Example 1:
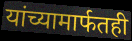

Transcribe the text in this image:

यांच्यामार्फतही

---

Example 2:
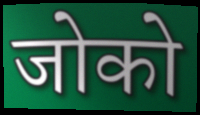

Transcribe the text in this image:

जोको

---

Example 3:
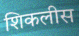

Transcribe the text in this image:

शिकलीस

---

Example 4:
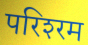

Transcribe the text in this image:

परिश्रम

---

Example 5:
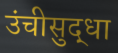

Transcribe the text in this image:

उंचीसुद्धा